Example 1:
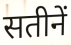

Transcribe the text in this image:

सतीनें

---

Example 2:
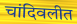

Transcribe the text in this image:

चांदिवलीत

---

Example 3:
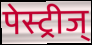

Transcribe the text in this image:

पेस्ट्रीज्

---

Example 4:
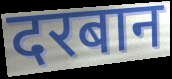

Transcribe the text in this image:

दरबान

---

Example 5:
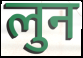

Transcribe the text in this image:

लुन